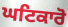
ਘਟਿਕਾਰੋ